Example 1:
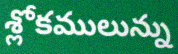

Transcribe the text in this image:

శ్లోకములున్ను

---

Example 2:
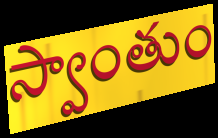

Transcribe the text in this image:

స్వాంతుం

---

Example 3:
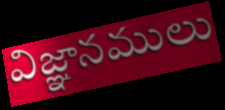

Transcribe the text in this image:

విజ్ఞానములు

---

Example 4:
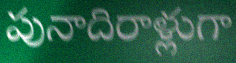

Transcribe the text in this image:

పునాదిరాళ్లుగా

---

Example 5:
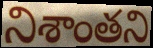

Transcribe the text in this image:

నిశాంతని